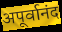
अपूर्वानंद